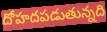
దోహదపడుతున్నది